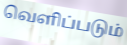
வெளிப்படும்